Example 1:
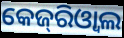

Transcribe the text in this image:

କେଜ୍‌ରିଓ୍ବାଲ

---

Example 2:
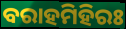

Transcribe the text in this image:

ବରାହମିହିରଃ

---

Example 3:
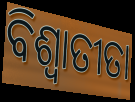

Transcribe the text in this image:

ବିଶ୍ଵାତୀତା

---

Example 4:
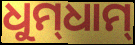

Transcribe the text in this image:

ଧୁମ୍‌ଧାମ୍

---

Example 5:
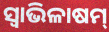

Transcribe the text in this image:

ସ୍ବାଭିଳାଷମ୍